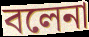
বলেনা